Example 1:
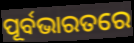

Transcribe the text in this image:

ପୂର୍ବଭାରତରେ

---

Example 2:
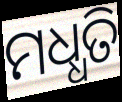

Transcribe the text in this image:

ମଧ୍ଧତି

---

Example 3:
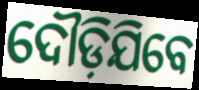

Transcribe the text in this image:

ଦୌଡ଼ିଯିବେ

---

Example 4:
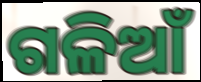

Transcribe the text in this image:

ଗଳିଆଁ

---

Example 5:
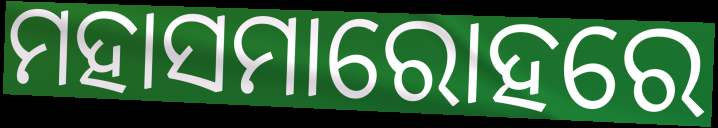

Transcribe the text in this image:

ମହାସମାରୋହରେ